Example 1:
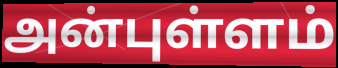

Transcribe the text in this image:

அன்புள்ளம்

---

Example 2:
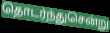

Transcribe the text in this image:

தொடர்ந்துசென்று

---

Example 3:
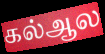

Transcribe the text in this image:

கல்ஆல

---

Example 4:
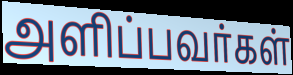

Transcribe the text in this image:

அளிப்பவர்கள்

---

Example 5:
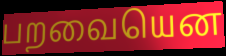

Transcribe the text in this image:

பறவையென